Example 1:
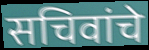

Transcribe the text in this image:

सचिवांचे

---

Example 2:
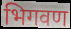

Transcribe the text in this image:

भिगवण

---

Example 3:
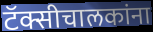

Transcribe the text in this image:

टॅक्सीचालकांना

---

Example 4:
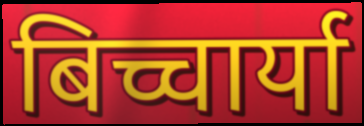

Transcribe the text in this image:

बिच्चार्या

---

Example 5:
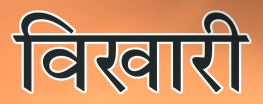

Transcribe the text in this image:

विखारी